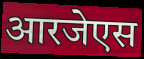
आरजेएस